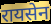
रायसेन